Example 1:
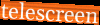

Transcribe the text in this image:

telescreen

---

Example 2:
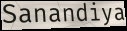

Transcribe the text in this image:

Sanandiya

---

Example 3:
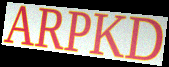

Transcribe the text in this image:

ARPKD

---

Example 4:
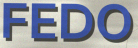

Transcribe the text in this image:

FEDO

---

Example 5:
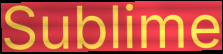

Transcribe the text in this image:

Sublime